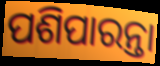
ପଶିପାରନ୍ତା